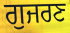
ਗੁਜਰਣ